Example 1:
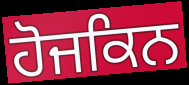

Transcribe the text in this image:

ਹੋਜਕਿਨ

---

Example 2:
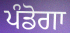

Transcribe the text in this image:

ਪੰਡੋਗਾ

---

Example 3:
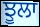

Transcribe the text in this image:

ਝੂਲਾ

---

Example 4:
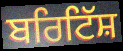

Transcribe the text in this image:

ਬਰਿਟਿੱਸ਼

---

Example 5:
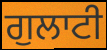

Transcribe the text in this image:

ਗੁਲਾਟੀ